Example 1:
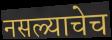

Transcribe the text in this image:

नसल्याचेच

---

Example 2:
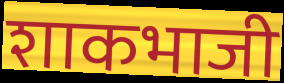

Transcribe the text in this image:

शाकभाजी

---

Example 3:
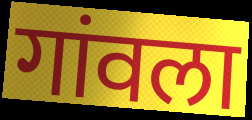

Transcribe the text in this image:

गांवला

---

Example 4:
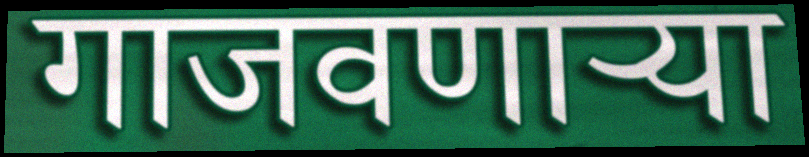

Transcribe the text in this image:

गाजवणाऱ्या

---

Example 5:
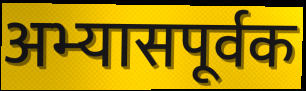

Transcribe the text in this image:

अभ्यासपूर्वक